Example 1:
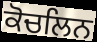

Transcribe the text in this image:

ਕੋਚਲਿਨ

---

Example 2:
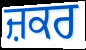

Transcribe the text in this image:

ਜ਼ਕਰ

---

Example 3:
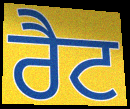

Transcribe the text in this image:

ਰੈਟ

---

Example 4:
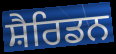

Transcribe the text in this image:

ਸ਼ੈਰਿਡਨ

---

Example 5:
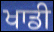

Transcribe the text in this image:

ਖਾਡੀ